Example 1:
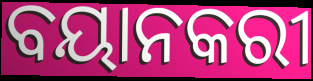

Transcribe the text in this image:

ବୟାନକରୀ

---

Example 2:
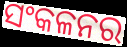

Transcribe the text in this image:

ସଂକଳନର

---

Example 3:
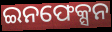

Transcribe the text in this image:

ଇନଫେକ୍ସନ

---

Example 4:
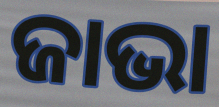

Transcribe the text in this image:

ଜାଭା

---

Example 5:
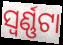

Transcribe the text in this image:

ସ୍ୱର୍ଣ୍ଣଟା